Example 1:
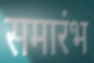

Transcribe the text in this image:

समारंभ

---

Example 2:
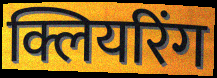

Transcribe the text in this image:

क्लियरिंग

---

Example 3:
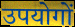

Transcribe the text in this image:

उपयोगों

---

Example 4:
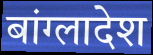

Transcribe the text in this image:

बांग्लादेश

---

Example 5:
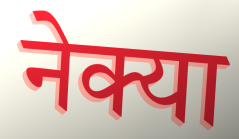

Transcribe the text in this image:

नेक्या